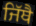
ਜਿੱਥੈ